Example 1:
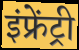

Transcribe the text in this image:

इंफ्रेंट्री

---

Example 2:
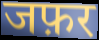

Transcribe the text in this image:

जफ़र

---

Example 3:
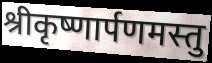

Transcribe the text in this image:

श्रीकृष्णार्पणमस्तु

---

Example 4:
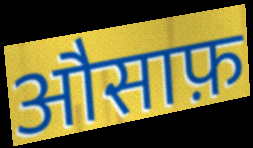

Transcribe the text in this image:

औसाफ़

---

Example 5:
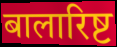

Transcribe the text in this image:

बालारिष्ट